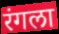
रंगला